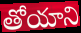
తోయాని